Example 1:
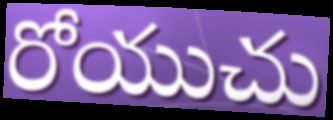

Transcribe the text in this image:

రోయుచు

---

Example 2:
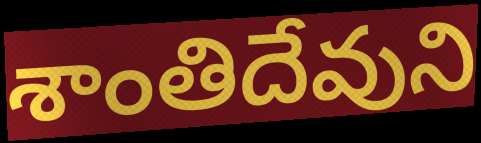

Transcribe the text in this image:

శాంతిదేవుని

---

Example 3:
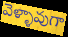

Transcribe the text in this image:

వెళ్ళావుగా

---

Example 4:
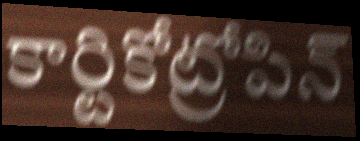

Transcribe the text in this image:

కార్టికోట్రోపిన్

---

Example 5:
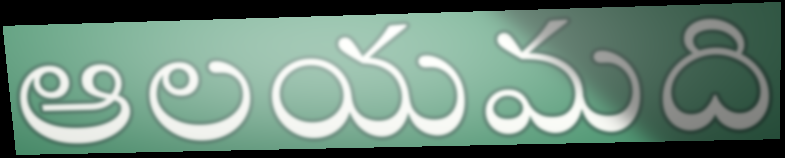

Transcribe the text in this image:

ఆలయమది